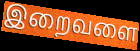
இறைவளை